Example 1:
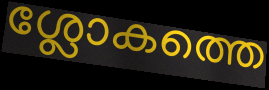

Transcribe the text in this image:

ശ്ലോകത്തെ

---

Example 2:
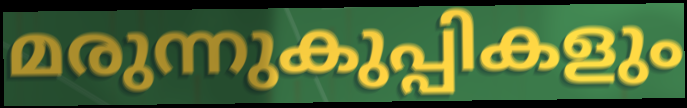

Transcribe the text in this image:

മരുന്നുകുപ്പികളും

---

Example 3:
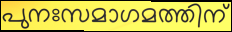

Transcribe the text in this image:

പുനഃസമാഗമത്തിന്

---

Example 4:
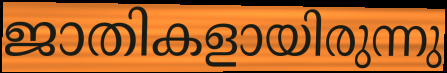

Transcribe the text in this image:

ജാതികളായിരുന്നു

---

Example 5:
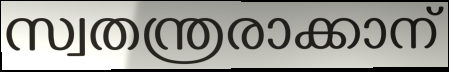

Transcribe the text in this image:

സ്വതന്ത്രരാക്കാന്